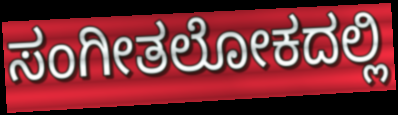
ಸಂಗೀತಲೋಕದಲ್ಲಿ